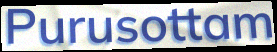
Purusottam